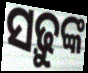
ସଢ଼ୁଙ୍କ